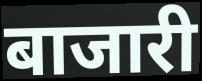
बाजारी